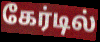
கேர்டில்